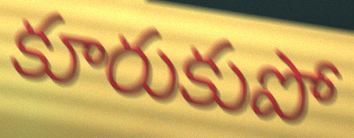
కూరుకుపో